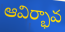
ఆవిర్భావ